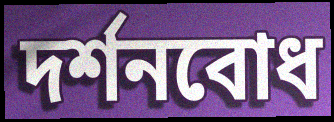
দর্শনবোধ